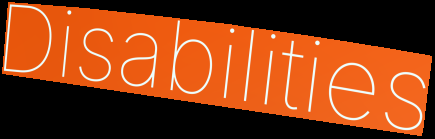
Disabilities